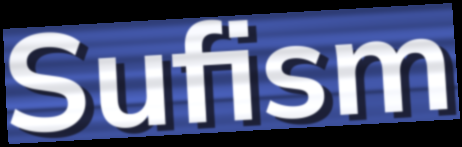
Sufism